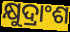
କ୍ଷୁଦ୍ରାଂଶ